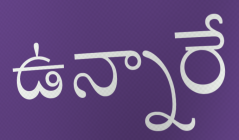
ఉన్నారే